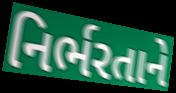
નિર્ભરતાને